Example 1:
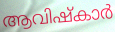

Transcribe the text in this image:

ആവിഷ്കാർ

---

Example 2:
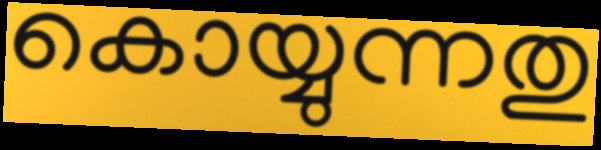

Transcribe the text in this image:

കൊയ്യുന്നതു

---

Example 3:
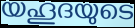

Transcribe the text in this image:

യഹൂദയുടെ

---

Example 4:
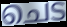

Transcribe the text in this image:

ചെട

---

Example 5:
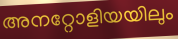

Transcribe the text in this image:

അനറ്റോളിയയിലും